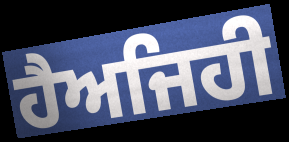
ਹੈਅਜਿਹੀ